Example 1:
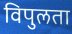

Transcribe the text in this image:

विपुलता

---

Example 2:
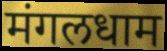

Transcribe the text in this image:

मंगलधाम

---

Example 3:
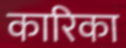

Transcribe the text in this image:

कारिका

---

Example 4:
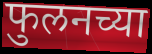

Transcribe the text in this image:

फुलनच्या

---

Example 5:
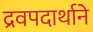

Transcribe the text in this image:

द्रवपदार्थाने